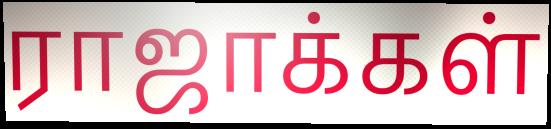
ராஜாக்கள்